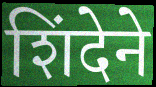
शिंदेने